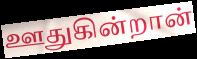
ஊதுகின்றான்